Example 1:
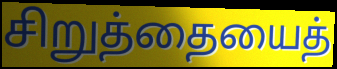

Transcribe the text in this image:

சிறுத்தையைத்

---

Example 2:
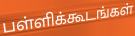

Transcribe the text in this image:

பள்ளிக்கூடங்கள்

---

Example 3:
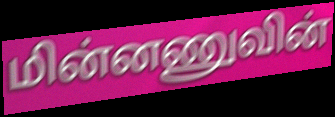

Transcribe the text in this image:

மின்னணுவின்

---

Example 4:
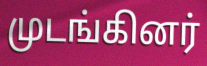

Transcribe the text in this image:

முடங்கினர்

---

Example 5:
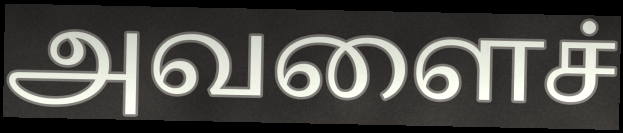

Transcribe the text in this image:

அவளைச்